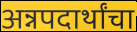
अन्नपदार्थांचा